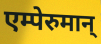
एम्पेरुमान्